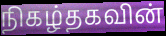
நிகழ்தகவின்